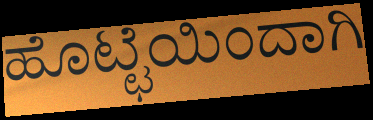
ಹೊಟ್ಟೆಯಿಂದಾಗಿ